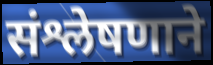
संश्लेषणाने